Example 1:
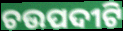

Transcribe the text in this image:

ଚଉପଦୀଟି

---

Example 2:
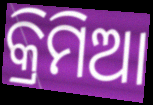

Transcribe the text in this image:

କ୍ରିମିଆ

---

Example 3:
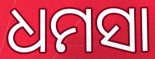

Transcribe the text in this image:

ଧମସା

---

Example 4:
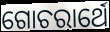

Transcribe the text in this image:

ଗୋଚରାର୍ଥେ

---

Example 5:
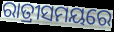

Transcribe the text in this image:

ରାତ୍ରୀସମୟରେ